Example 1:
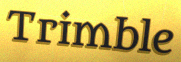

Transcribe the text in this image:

Trimble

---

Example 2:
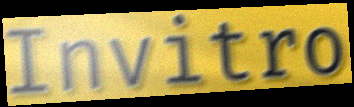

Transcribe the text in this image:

Invitro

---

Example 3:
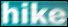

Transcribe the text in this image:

hike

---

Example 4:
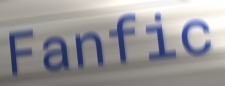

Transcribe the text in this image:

Fanfic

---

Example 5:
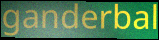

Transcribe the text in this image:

ganderbal